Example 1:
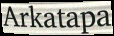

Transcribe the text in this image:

Arkatapa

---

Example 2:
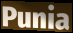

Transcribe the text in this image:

Punia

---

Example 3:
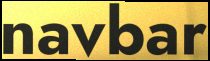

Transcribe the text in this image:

navbar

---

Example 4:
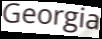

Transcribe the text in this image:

Georgia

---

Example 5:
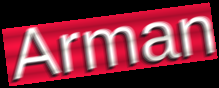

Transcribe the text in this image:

Arman